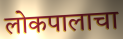
लोकपालाचा